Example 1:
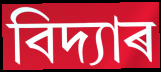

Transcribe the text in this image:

বিদ্যাৰ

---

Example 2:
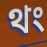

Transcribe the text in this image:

থং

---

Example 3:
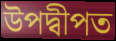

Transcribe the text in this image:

উপদ্বীপত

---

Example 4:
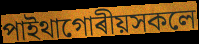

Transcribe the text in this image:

পাইথাগোৰীয়সকলে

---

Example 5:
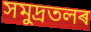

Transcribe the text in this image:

সমুদ্ৰতলৰ